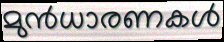
മുൻധാരണകൾ